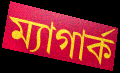
ম্যাগার্ক